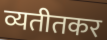
व्यतीतकर